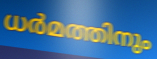
ധർമത്തിനും